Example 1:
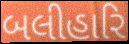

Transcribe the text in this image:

બલીહારિ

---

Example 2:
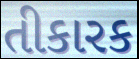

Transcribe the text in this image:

તીકારક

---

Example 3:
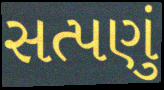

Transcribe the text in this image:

સત્પણું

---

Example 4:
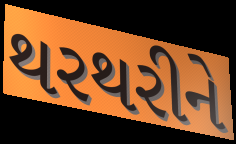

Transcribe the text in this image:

થરથરીને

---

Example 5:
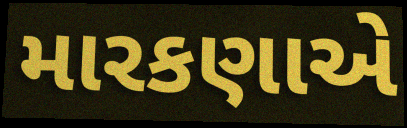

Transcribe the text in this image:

મારકણાએ